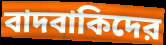
বাদবাকিদের